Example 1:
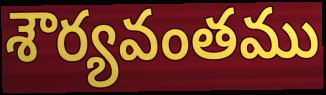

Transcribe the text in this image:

శౌర్యవంతము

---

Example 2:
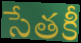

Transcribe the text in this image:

సేతకీ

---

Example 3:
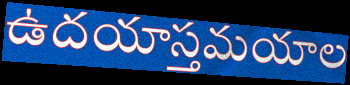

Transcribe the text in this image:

ఉదయాస్తమయాల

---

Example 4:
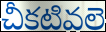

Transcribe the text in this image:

చీకటివలె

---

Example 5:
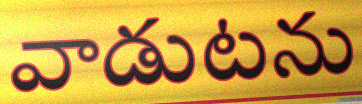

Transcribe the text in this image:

వాడుటను